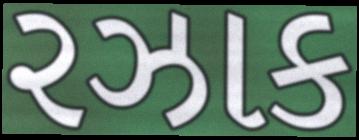
રઝાક